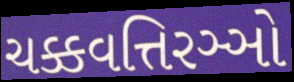
ચક્કવત્તિરઞ્ઞો